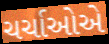
ચર્ચાઓએ